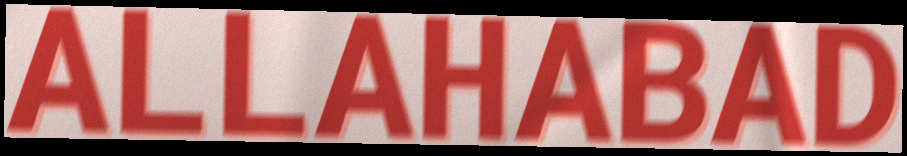
ALLAHABAD